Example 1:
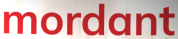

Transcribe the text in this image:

mordant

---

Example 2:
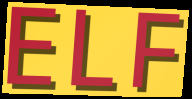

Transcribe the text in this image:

ELF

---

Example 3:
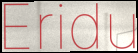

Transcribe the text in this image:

Eridu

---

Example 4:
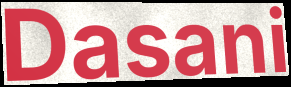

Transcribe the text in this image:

Dasani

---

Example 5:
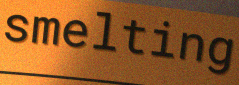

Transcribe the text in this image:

smelting